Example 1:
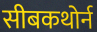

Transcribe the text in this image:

सीबकथोर्न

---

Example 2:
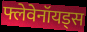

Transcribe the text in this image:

फ्लेवेनॉयड्स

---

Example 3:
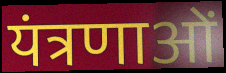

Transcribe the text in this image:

यंत्रणाओं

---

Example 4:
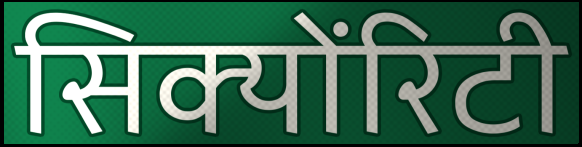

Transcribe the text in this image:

सिक्योंरिटी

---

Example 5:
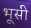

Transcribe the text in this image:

भूसी